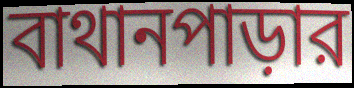
বাথানপাড়ার